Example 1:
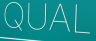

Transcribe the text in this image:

QUAL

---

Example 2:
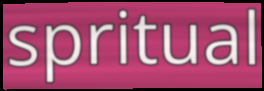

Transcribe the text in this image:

spritual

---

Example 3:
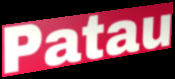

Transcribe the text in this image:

Patau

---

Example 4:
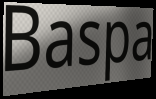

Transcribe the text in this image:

Baspa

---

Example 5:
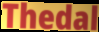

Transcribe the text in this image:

Thedal